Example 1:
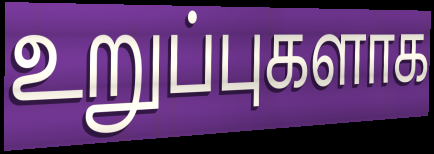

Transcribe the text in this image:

உறுப்புகளாக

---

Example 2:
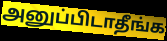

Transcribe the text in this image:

அனுப்பிடாதீங்க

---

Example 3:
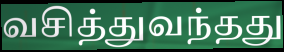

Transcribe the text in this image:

வசித்துவந்தது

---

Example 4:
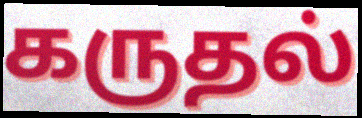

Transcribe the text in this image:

கருதல்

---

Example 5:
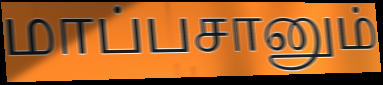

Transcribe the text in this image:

மாப்பசானும்